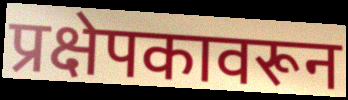
प्रक्षेपकावरून